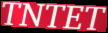
TNTET